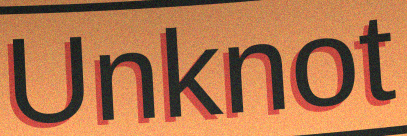
Unknot